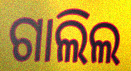
ଗାଲିଲ